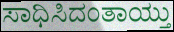
ಸಾಧಿಸಿದಂತಾಯ್ತು